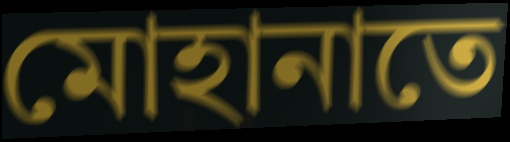
মোহানাতে